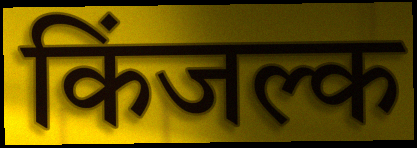
किंजल्क